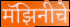
मॅझिनीचे